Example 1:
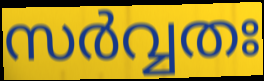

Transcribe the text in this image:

സർവ്വതഃ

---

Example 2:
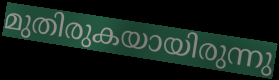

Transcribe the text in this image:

മുതിരുകയായിരുന്നു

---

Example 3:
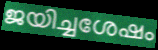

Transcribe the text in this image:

ജയിച്ചശേഷം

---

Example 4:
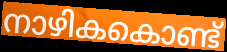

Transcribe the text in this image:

നാഴികകൊണ്ട്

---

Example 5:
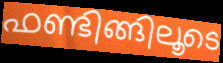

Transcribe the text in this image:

ഫണ്ടിങ്ങിലൂടെ